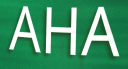
AHA